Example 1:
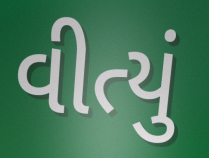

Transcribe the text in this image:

વીત્યું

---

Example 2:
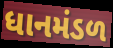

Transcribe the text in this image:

ધાનમંડળ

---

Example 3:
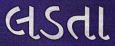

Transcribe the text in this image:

લડતા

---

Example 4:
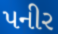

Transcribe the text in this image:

પનીર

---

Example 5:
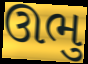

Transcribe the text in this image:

ઊભુ